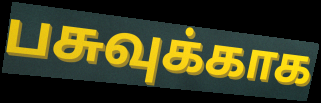
பசுவுக்காக